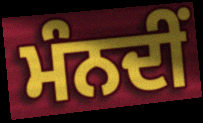
ਮੰਨਦੀਂ